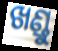
ଖଣ୍ଡୁ